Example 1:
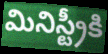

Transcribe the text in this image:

మినిస్ట్రీకి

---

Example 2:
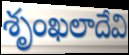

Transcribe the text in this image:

శృంఖలాదేవి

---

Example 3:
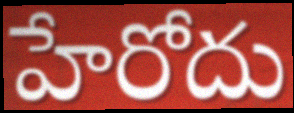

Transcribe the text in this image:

హేరోదు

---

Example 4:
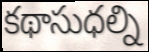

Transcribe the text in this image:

కథాసుధల్ని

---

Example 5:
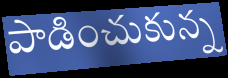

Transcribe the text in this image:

పాడించుకున్న